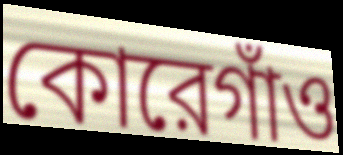
কোরেগাঁও